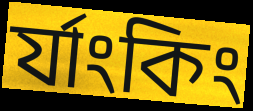
র্যাংকিং